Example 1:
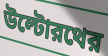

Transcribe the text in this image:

উল্টোরথের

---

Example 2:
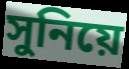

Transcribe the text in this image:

সুনিয়ে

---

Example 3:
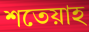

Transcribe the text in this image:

শতেয়াহ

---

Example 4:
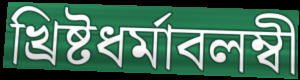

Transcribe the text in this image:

খ্রিষ্টধর্মাবলম্বী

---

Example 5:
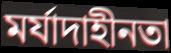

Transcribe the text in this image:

মর্যাদাহীনতা